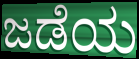
ಜಡೆಯ